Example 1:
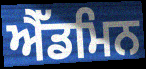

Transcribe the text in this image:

ਐੱਡਮਿਨ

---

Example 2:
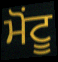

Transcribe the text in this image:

ਮੋਂਟੂ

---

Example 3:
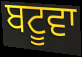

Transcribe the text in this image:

ਬਟੂਵਾ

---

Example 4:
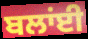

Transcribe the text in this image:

ਬਲਾਂਈ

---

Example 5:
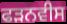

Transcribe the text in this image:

ਫੜਨਵੀਸ